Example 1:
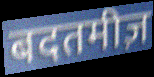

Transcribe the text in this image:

बदतमीज़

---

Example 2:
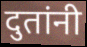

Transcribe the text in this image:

दुतांनी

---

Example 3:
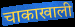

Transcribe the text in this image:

चाकाखाली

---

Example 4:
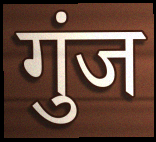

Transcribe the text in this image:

गुंज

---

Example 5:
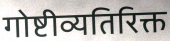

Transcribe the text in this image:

गोष्टीव्यतिरिक्त